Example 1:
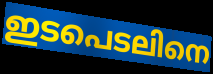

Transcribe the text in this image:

ഇടപെടലിനെ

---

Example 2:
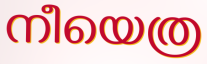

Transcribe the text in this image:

നീയെത്ര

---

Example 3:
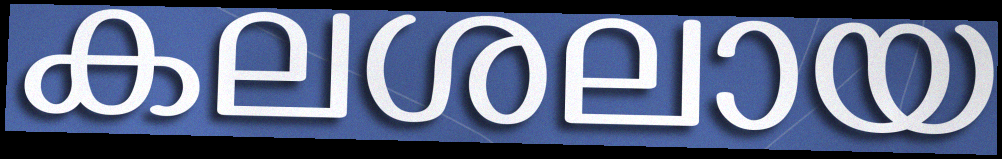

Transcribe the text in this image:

കലശലായ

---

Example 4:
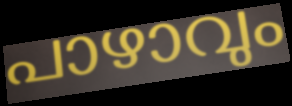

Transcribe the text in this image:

പാഴാവും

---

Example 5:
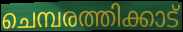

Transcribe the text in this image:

ചെമ്പരത്തിക്കാട്